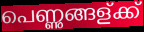
പെണ്ണുങ്ങള്ക്ക്